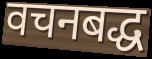
वचनबद्ध